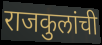
राजकुलांची